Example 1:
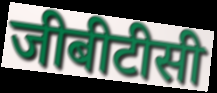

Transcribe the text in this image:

जीबीटीसी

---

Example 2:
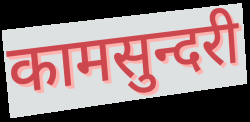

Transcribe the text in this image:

कामसुन्दरी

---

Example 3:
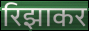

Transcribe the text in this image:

रिझाकर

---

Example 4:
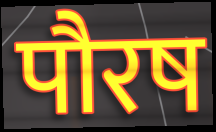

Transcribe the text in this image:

पौरष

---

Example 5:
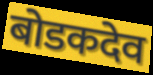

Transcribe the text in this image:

बोडकदेव